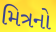
મિત્રનો